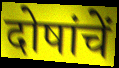
दोषांचें